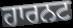
ਹਾਰਨਟ